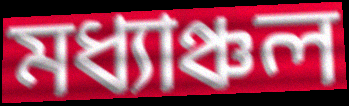
মধ্যাঞ্চল